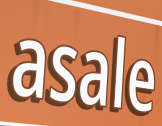
asale